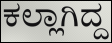
ಕಲ್ಲಾಗಿದ್ದ